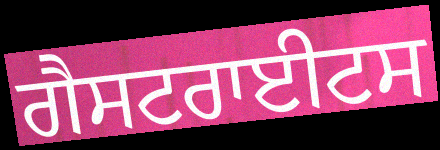
ਗੈਸਟਰਾਈਟਸ